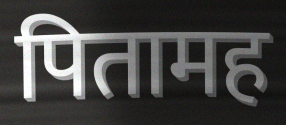
पितामह